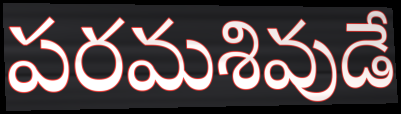
పరమశివుడే